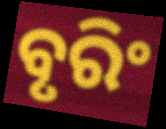
ବୃରିଂ